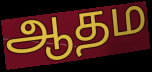
ஆதம